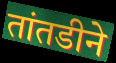
तांतडीने